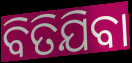
ବିତିଯିବା